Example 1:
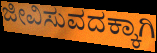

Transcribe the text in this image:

ಜೀವಿಸುವದಕ್ಕಾಗಿ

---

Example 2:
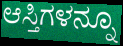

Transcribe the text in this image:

ಆಸ್ತಿಗಳನ್ನೂ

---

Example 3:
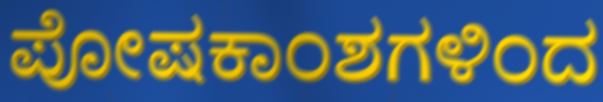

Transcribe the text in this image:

ಪೋಷಕಾಂಶಗಳಿಂದ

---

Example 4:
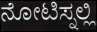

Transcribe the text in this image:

ನೋಟಿಸ್ನಲ್ಲಿ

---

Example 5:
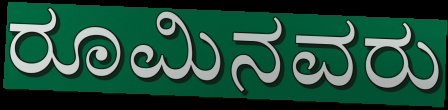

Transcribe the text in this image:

ರೂಮಿನವರು